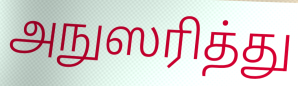
அநுஸரித்து